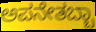
ಅಪನೇತಬ್ಬಾ